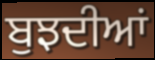
ਬੁਝਦੀਆਂ